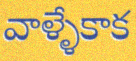
వాళ్ళేకాక